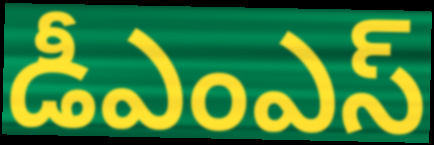
డీఎంఎస్